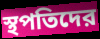
স্থপতিদের